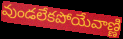
వుండలేకపోయేవాణ్ణి